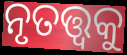
ନୃତତ୍ତ୍ଵକୁ